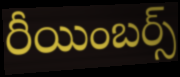
రీయింబర్స్